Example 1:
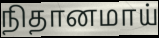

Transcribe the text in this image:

நிதானமாய்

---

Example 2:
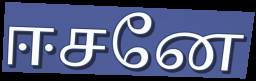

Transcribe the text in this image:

ஈசனே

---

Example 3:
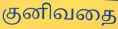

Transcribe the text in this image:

குனிவதை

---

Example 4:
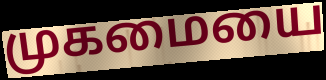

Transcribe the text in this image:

முகமையை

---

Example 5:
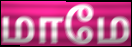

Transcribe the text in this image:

மாமே